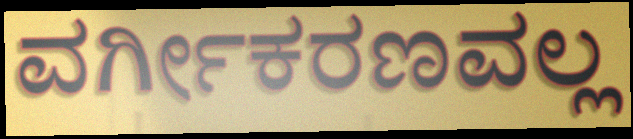
ವರ್ಗೀಕರಣವಲ್ಲ